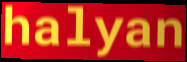
halyan